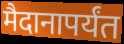
मैदानापर्यंत